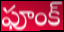
ఫూంక్